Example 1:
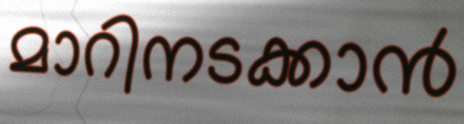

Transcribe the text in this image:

മാറിനടക്കാൻ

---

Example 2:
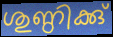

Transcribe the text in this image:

ശുണ്ഠിക്കു്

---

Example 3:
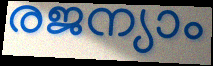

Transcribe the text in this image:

രജന്യാം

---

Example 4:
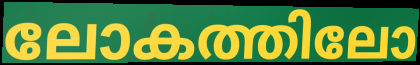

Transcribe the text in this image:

ലോകത്തിലോ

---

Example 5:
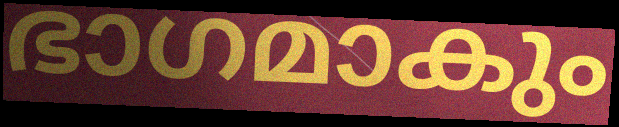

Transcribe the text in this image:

ഭാഗമാകും